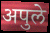
अपुले